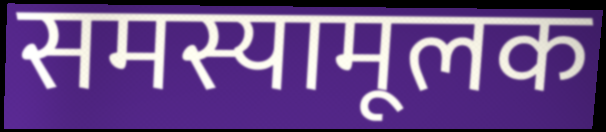
समस्यामूलक